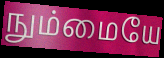
நும்மையே